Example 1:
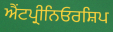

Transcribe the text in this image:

ਐਂਟਪ੍ਰੀਨਿਓਰਸ਼ਿਪ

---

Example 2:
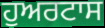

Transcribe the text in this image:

ਹੁਅਰਟਾਸ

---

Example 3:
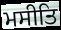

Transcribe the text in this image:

ਮਸੀਤਿ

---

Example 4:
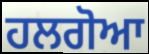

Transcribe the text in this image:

ਹਲਗੋਆ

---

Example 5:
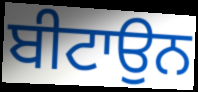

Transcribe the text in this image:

ਬੀਟਾਉਨ